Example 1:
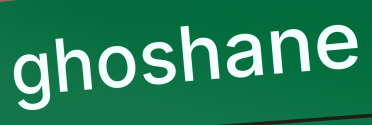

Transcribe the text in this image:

ghoshane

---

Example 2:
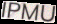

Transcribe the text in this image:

IPMU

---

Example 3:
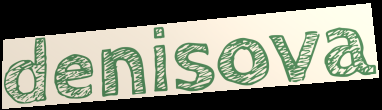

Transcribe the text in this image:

denisova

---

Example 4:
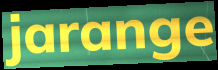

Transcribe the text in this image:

jarange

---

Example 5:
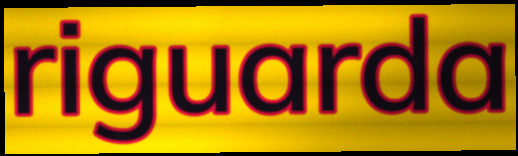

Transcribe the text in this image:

riguarda